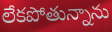
లేకపోతున్నాను